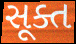
સૂક્ત